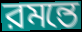
রমন্তে